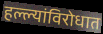
हल्ल्यांविरोधात